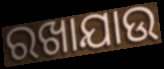
ରଖାଯାଉ